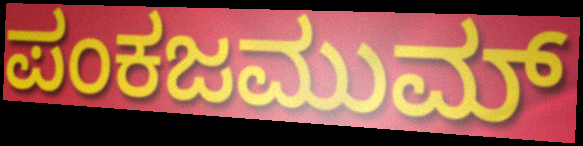
ಪಂಕಜಮುಮ್